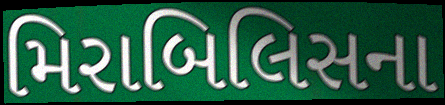
મિરાબિલિસના